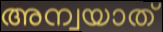
അന്വയാത്